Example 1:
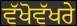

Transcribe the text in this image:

ਵੱਖੋਵੱਖਰੇ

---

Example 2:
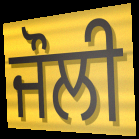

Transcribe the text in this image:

ਜੌਲੀ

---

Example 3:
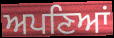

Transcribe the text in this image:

ਅਪਣਿਆਂ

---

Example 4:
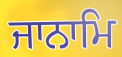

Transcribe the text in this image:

ਜਾਨਾਮਿ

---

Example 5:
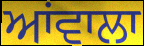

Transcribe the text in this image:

ਆਂਵਾਲਾ